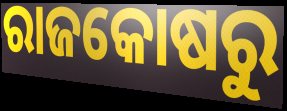
ରାଜକୋଷରୁ